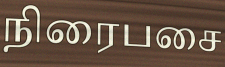
நிரைபசை